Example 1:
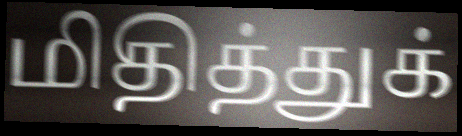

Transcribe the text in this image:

மிதித்துக்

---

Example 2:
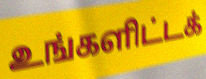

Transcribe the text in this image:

உங்களிட்டக்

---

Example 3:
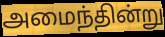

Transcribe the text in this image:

அமைந்தின்று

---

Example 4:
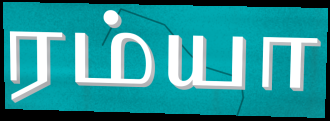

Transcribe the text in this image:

ரம்யா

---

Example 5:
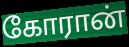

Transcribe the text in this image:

கோரான்